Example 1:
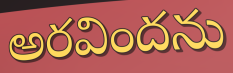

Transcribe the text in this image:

అరవిందను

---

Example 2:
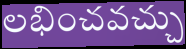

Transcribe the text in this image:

లభించవచ్చు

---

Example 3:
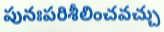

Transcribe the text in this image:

పునఃపరిశీలించవచ్చు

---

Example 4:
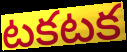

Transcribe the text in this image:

టకటక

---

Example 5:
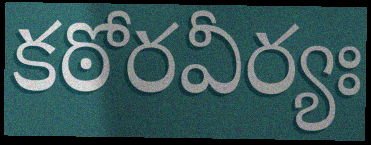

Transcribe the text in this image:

కఠోరవీర్యః